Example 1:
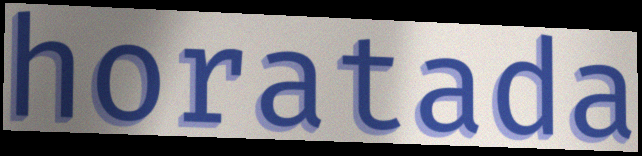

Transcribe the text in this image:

horatada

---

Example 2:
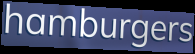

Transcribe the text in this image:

hamburgers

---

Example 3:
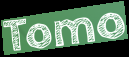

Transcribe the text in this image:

Tomo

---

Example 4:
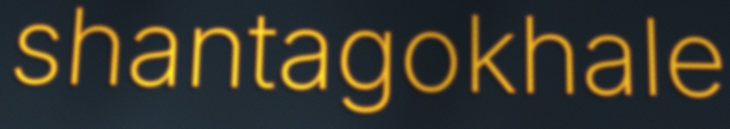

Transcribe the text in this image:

shantagokhale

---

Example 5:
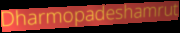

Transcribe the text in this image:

Dharmopadeshamrut